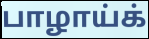
பாழாய்க்